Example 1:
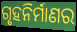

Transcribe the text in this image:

ଗୃହନିର୍ମାଣର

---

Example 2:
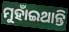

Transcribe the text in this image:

ମୁହାଁଇଥାନ୍ତି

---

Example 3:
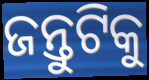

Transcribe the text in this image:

ଜନ୍ତୁଟିକୁ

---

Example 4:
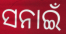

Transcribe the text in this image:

ସନାଇଁ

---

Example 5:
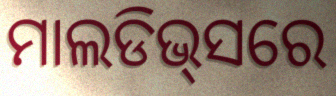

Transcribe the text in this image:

ମାଲଡିଭ୍‌ସରେ